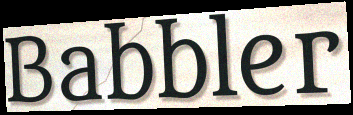
Babbler